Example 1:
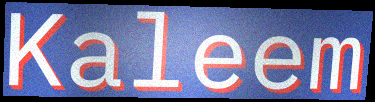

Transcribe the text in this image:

Kaleem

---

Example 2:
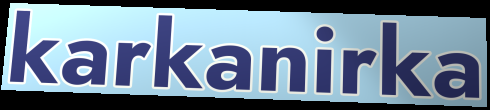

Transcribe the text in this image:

karkanirka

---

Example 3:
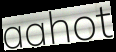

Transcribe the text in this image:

aahot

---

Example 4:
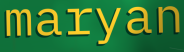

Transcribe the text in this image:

maryan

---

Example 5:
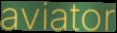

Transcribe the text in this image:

aviator